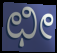
ಛೀ